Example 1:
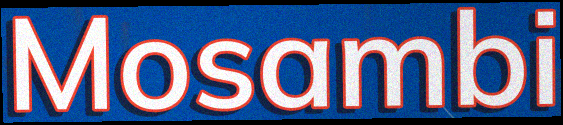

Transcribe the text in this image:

Mosambi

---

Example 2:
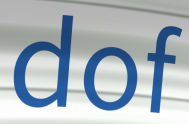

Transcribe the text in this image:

dof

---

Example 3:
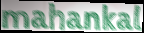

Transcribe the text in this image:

mahankal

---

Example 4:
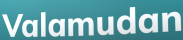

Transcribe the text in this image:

Valamudan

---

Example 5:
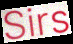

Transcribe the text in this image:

Sirs